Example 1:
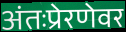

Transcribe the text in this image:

अंतःप्रेरणेवर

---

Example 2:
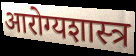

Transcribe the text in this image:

आरोग्यशास्त्र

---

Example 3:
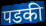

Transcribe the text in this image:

पडकी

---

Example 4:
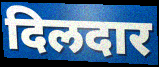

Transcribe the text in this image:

दिलदार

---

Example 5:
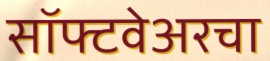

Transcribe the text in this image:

सॉफ्टवेअरचा